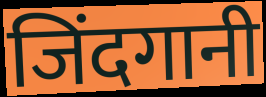
जिंदगानी